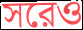
সরেও